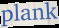
plank